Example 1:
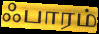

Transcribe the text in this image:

ஃபாரம்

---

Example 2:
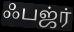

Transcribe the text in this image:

ஃபஜ்ர்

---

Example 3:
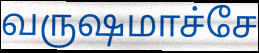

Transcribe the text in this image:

வருஷமாச்சே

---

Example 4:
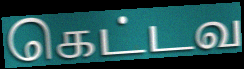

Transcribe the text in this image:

கெட்டவ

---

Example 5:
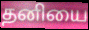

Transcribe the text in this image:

தனியை